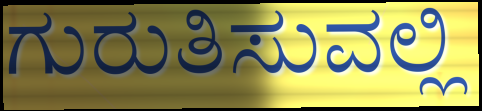
ಗುರುತಿಸುವಲ್ಲಿ